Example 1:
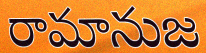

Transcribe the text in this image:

రామానుజ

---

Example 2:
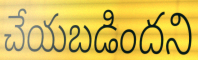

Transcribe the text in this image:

చేయబడిందని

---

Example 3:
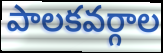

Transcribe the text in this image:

పాలకవర్గాల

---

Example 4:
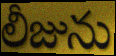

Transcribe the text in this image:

లీజును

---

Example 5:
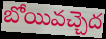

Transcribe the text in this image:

బోయివచ్చెద